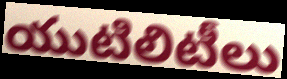
యుటిలిటీలు